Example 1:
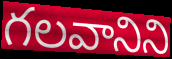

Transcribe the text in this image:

గలవానిని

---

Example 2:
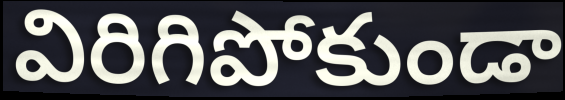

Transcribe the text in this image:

విరిగిపోకుండా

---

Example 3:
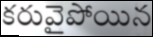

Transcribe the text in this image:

కరువైపోయిన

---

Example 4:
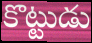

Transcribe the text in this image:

కొట్టుడు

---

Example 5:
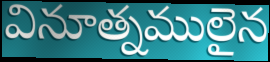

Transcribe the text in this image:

వినూత్నములైన